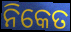
ନିକେତ